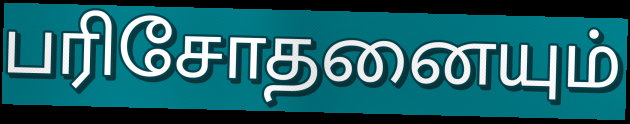
பரிசோதனையும்